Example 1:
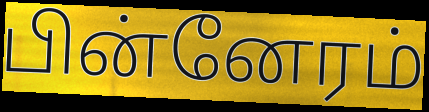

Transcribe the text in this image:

பின்னேரம்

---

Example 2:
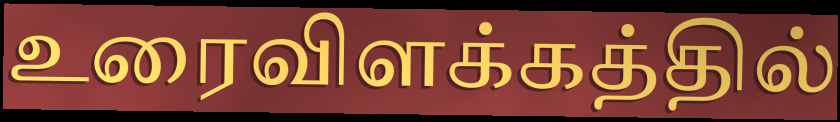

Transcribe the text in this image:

உரைவிளக்கத்தில்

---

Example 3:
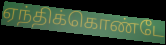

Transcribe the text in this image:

ஏந்திக்கொண்டே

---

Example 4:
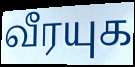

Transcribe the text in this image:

வீரயுக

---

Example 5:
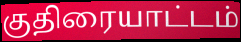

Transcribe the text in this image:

குதிரையாட்டம்